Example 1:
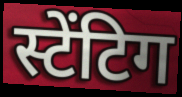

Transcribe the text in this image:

स्टेंटिग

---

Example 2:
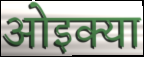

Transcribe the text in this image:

ओइक्या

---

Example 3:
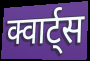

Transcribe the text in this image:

क्वार्ट्स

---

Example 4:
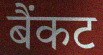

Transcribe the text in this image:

बैंकट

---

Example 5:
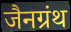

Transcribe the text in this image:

जैनग्रंथ